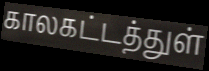
காலகட்டத்துள்